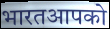
भारतआपको